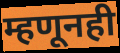
म्हणूनही